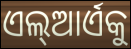
ଏଲ୍ଆର୍ଏକୁ